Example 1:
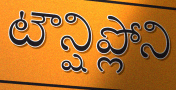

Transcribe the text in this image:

టౌన్షిప్లోని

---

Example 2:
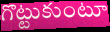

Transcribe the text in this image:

గొట్టుకుంటూ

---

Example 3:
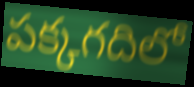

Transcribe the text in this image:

పక్కగదిలో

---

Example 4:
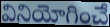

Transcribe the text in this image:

వినియోగించే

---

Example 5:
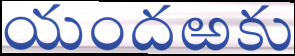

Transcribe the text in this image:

యందఱకు